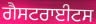
ਗੈਸਟਰਾਈਟਸ